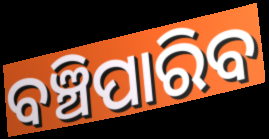
ବଞ୍ଚିପାରିବ